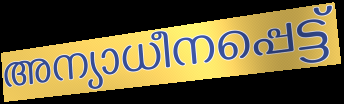
അന്യാധീനപ്പെട്ട്